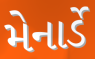
મેનાર્ડે